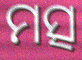
ମତ୍ସ